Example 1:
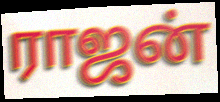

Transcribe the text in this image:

ராஜன்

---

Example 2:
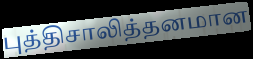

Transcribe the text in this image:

புத்திசாலித்தனமான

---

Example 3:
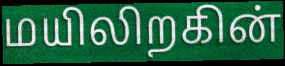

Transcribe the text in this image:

மயிலிறகின்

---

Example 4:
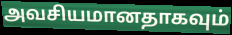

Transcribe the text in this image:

அவசியமானதாகவும்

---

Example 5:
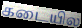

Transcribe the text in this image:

கடையில